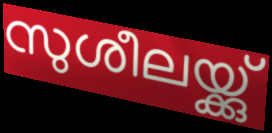
സുശീലയ്ക്കു്